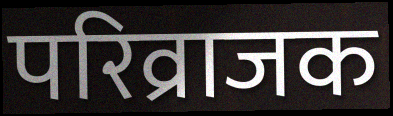
परिव्राजक